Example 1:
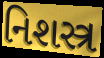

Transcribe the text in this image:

નિશસ્ત્ર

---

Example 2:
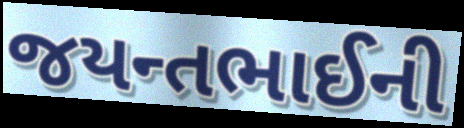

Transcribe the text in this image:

જયન્તભાઈની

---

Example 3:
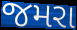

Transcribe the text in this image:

જમરા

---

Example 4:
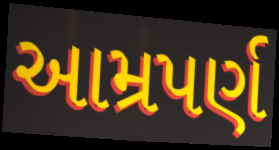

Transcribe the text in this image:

આમ્રપર્ણ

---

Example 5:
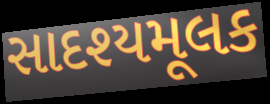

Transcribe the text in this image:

સાદશ્યમૂલક